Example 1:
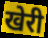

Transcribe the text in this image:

खेरी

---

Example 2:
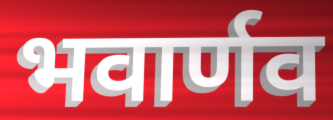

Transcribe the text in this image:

भवार्णव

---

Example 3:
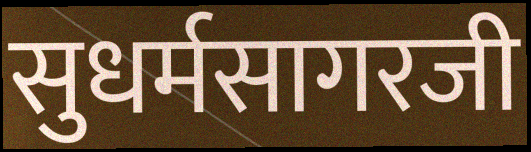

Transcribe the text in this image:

सुधर्मसागरजी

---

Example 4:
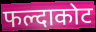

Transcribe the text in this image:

फल्दाकोट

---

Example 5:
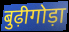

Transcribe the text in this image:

बुढ़ीगोड़ा